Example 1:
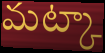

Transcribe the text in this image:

మట్కా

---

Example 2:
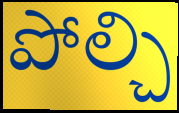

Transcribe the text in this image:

పోల్చి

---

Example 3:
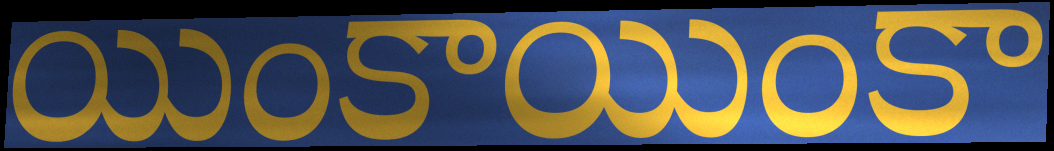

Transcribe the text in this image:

యింకాయింకా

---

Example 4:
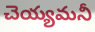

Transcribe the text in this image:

చెయ్యమనీ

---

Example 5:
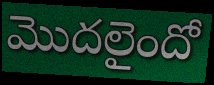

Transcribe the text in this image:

మొదలైందో